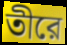
তীরে